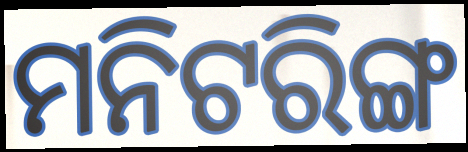
ମନିଟରିଙ୍ଗ